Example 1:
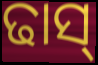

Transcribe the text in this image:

ଢାସ୍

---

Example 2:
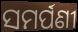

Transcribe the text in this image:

ସମର୍ପଣୀ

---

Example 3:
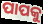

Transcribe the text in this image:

ପାପକୁ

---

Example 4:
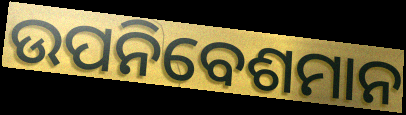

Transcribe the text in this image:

ଉପନିବେଶମାନ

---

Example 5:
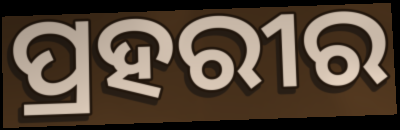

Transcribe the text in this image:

ପ୍ରହରୀର